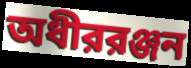
অধীররঞ্জন